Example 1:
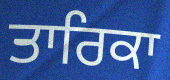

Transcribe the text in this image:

ਤਾਰਿਕਾ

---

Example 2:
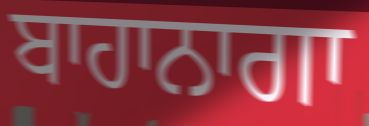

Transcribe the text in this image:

ਬਾਹਾਨਾਗਾ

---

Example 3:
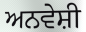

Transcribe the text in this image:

ਅਨਵੇਸ਼ੀ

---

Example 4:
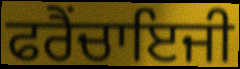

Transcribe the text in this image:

ਫਰੈਂਚਾਇਜੀ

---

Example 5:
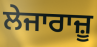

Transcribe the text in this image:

ਲੇਜਾਰਾਜ਼ੂ